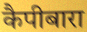
कैपीबारा